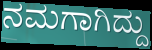
ನಮಗಾಗಿದ್ದು